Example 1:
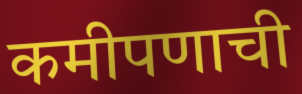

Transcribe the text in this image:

कमीपणाची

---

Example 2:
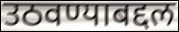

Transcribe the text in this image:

उठवण्याबद्दल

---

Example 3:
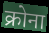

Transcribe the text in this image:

क्रोना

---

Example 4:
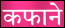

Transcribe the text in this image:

कफाने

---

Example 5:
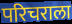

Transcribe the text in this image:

परिचराला